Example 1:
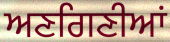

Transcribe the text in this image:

ਅਣਗਿਣੀਆਂ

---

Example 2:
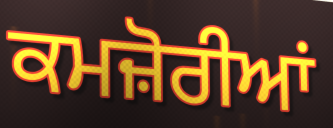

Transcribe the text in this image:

ਕਮਜ਼ੋਰੀਆਂ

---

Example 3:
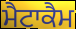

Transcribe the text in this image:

ਮੈਟਾਕੈਮ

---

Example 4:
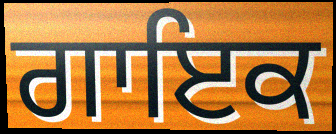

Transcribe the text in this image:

ਗਾਇਕ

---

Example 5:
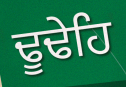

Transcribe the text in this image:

ਢੂਢੇਹਿ